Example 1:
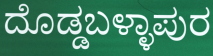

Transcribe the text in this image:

ದೊಡ್ಡಬಳ್ಳಾಪುರ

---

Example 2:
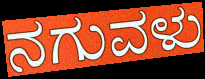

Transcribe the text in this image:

ನಗುವಳು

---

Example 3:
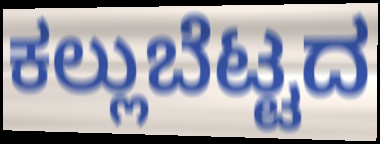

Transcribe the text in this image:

ಕಲ್ಲುಬೆಟ್ಟದ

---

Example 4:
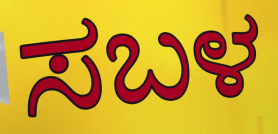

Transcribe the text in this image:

ಸಬಳ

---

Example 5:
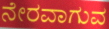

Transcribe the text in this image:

ನೇರವಾಗುವ